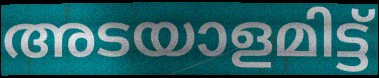
അടയാളമിട്ട്